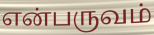
என்பருவம்